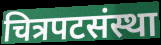
चित्रपटसंस्था